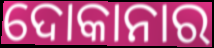
ଦୋକାନାର